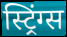
स्ट्रिंग्स